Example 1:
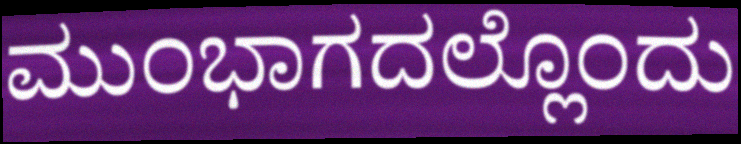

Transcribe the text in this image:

ಮುಂಭಾಗದಲ್ಲೊಂದು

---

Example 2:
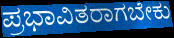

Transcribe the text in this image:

ಪ್ರಭಾವಿತರಾಗಬೇಕು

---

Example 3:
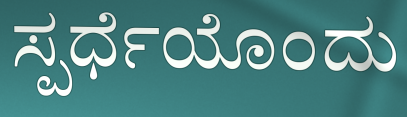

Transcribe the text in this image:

ಸ್ಪರ್ಧೆಯೊಂದು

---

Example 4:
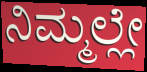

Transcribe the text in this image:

ನಿಮ್ಮಲ್ಲೇ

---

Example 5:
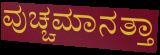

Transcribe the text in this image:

ವುಚ್ಚಮಾನತ್ತಾ